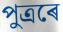
পুত্ৰৰে